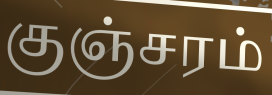
குஞ்சரம்